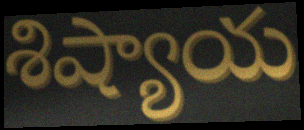
శిష్యాయ